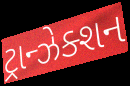
ટ્રાન્ઝેક્શન